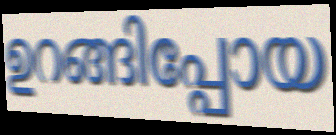
ഉറങ്ങിപ്പോയ